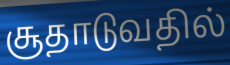
சூதாடுவதில்